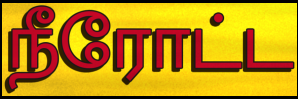
நீரோட்ட